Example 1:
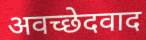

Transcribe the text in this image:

अवच्छेदवाद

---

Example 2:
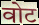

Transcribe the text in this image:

वोट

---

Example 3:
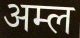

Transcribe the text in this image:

अम्ल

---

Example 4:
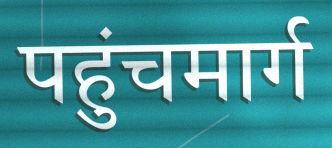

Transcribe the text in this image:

पहुंचमार्ग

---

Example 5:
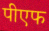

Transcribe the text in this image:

पीएफ